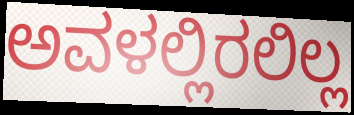
ಅವಳಲ್ಲಿರಲಿಲ್ಲ